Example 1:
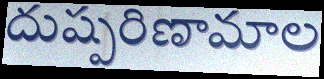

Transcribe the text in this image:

దుష్పరిణామాల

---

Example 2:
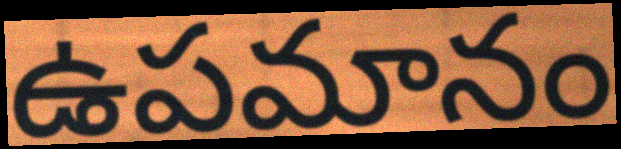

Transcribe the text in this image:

ఉపమానం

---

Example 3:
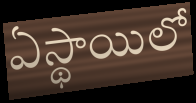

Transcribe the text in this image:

ఏస్థాయిలో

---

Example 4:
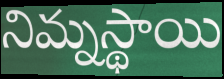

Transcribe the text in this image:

నిమ్నస్థాయి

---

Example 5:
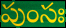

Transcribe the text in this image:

పుంసః